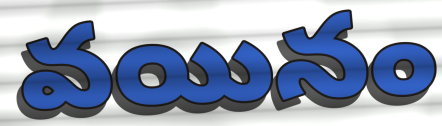
వయినం